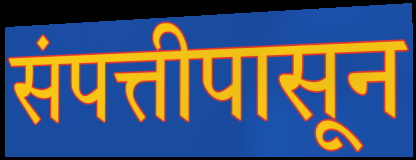
संपत्तीपासून